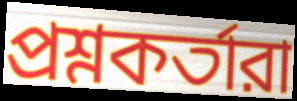
প্রশ্নকর্তারা